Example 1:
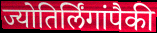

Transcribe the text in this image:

ज्योतिर्लिंगांपैकी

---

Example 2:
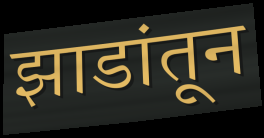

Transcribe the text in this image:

झाडांतून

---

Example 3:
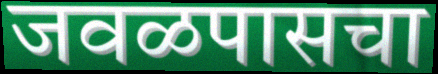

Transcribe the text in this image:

जवळपासचा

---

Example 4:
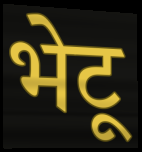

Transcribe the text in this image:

भेटू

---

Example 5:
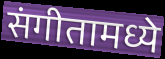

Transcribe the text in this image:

संगीतामध्ये